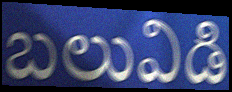
బలువిడి